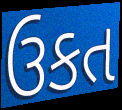
ઉકત